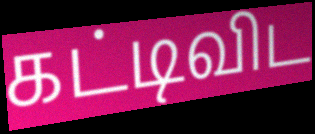
கட்டிவிட